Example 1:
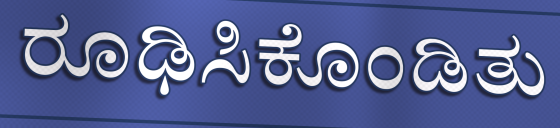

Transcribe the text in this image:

ರೂಢಿಸಿಕೊಂಡಿತು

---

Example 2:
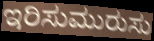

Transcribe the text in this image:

ಇರಿಸುಮುರುಸು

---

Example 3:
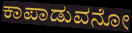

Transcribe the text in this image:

ಕಾಪಾಡುವನೋ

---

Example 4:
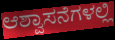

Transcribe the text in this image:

ಆಶ್ವಾಸನೆಗಳಲ್ಲಿ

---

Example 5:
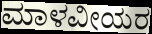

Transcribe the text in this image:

ಮಾಳವೀಯರ